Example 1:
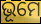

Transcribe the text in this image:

ଭୂମେ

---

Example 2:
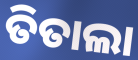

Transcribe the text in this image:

ତିତାଲା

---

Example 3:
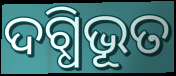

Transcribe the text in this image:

ଦଗ୍ଧିଭୂତ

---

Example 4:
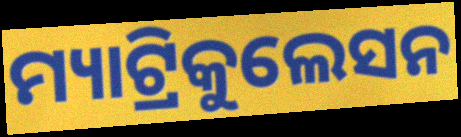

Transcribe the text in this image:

ମ୍ୟାଟ୍ରିକୁଲେସନ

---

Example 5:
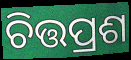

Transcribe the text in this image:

ଚିତ୍ତପ୍ରଶ